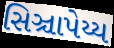
સિઞ્ચાપેય્ય